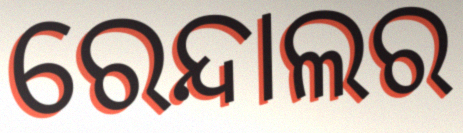
ରେନ୍ଦାଲର